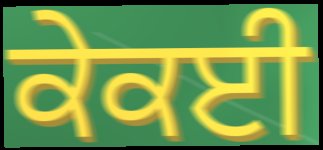
ਕੇਕਈ